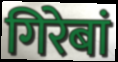
गिरेबां